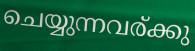
ചെയ്യുന്നവര്ക്കു